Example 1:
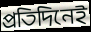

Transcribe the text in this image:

প্ৰতিদিনেই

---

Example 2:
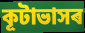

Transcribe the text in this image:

কূটাভাসৰ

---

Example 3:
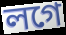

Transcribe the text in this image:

লগে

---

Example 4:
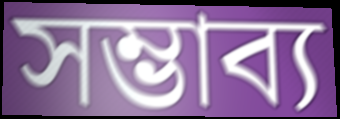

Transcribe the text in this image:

সম্ভাব্য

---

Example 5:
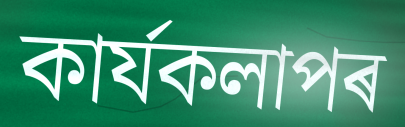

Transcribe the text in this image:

কাৰ্যকলাপৰ